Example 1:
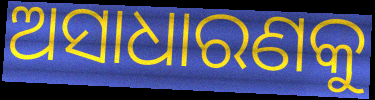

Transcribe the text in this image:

ଅସାଧାରଣକୁ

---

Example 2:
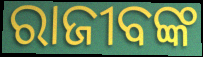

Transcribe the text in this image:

ରାଜୀବଙ୍କ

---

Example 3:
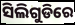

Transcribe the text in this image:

ସିଲିଗୁଡିରେ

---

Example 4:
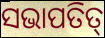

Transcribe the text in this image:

ସଭାପତିତ୍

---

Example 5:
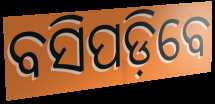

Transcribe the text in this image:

ବସିପଡ଼ିବେ